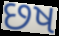
છષ